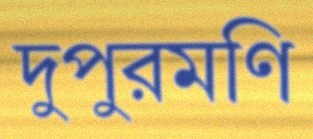
দুপুরমণি